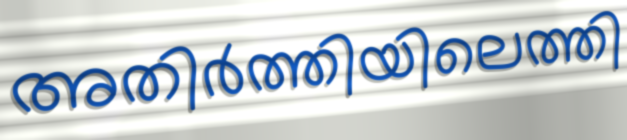
അതിർത്തിയിലെത്തി